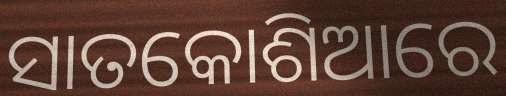
ସାତକୋଶିଆରେ